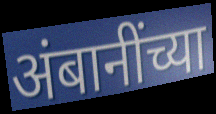
अंबानींच्या